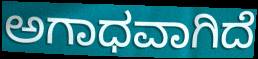
ಅಗಾಧವಾಗಿದೆ